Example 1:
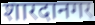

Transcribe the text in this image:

शारदानगर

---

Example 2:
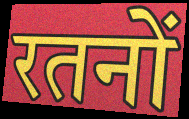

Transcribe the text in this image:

रतनों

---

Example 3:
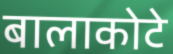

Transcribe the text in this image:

बालाकोटे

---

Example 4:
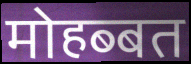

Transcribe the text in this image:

मोहब्‍बत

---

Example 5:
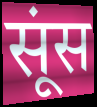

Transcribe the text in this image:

सूंस